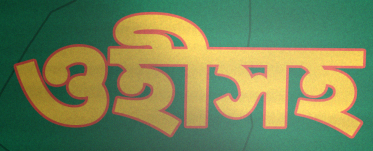
ওহীসহ